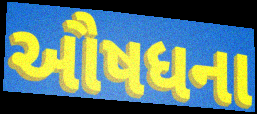
ઔષધના